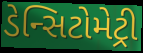
ડેન્સિટોમેટ્રી